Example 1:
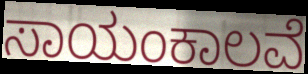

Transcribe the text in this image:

ಸಾಯಂಕಾಲವೆ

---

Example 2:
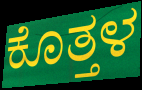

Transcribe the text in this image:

ಕೊತ್ತಳ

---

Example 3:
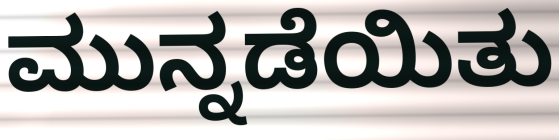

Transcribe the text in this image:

ಮುನ್ನಡೆಯಿತು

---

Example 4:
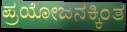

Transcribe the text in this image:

ಪ್ರಯೋಜನಕ್ಕಿಂತ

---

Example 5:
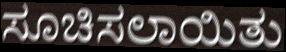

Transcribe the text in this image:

ಸೂಚಿಸಲಾಯಿತು